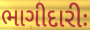
ભાગીદારીઃ